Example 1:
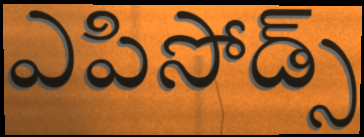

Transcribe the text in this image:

ఎపిసోడ్స్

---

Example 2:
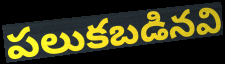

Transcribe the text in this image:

పలుకబడినవి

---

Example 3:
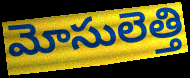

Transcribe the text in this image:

మోసులెత్తి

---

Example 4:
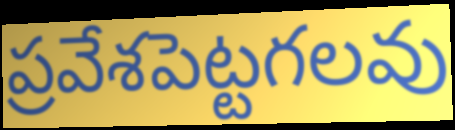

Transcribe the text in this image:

ప్రవేశపెట్టగలవు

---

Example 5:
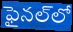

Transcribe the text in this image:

ఫైనల్‌లో